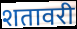
शतावरी